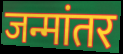
जन्मांतर